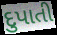
દુપાતી